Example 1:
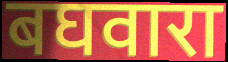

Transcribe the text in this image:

बघवारा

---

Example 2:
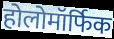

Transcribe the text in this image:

होलोमॉर्फिक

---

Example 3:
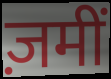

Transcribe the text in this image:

ज़मीं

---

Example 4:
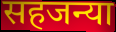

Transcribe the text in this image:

सहजन्या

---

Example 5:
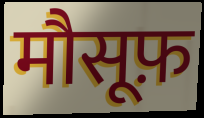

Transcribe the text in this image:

मौसूफ़